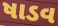
ષાડવ